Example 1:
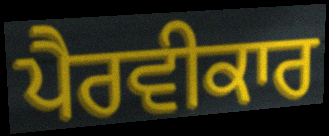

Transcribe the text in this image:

ਪੈਰਵੀਕਾਰ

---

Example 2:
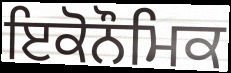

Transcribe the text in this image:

ਇਕੋਨੌਮਿਕ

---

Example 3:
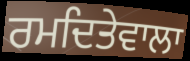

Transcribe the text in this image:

ਰਮਦਿਤੇਵਾਲਾ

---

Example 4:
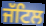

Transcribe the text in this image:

ਜੱਟਿਲ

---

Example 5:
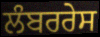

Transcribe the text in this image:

ਲੰਬਰਰੇਸ